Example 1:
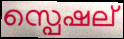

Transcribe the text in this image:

സ്പെഷല്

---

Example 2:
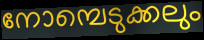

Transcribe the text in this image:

നോമ്പെടുക്കലും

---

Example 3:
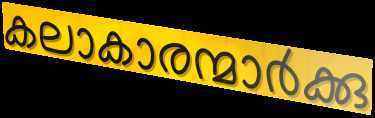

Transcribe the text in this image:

കലാകാരന്മാർക്കു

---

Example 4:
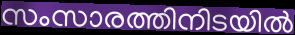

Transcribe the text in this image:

സംസാരത്തിനിടയിൽ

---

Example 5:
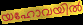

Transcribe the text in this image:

യഹോവയിൽ